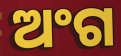
ଅଂଗ